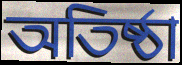
অতিষ্ঠা